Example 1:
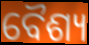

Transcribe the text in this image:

ବୈଶ୍ୟ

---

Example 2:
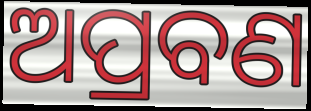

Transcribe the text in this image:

ଅପ୍ରବଣ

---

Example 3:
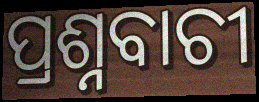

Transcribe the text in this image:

ପ୍ରଶ୍ନବାଚୀ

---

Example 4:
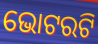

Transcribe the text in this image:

ଭୋଟରଟି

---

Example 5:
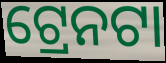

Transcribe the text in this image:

ଟ୍ରେନଟା